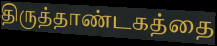
திருத்தாண்டகத்தை